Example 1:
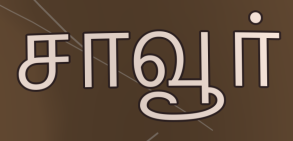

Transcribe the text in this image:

சாவூர்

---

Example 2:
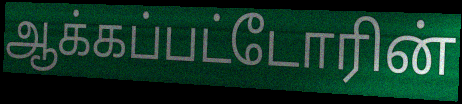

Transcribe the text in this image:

ஆக்கப்பட்டோரின்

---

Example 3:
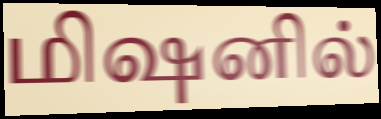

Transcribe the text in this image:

மிஷனில்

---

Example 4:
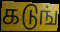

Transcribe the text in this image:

கடுங்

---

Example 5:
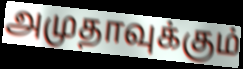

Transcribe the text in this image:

அமுதாவுக்கும்